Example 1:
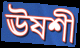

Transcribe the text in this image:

ঊষশী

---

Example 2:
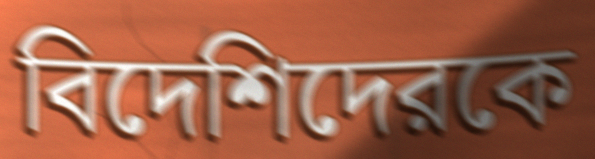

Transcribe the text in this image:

বিদেশিদেরকে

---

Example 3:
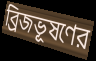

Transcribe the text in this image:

ব্রিজভূষণের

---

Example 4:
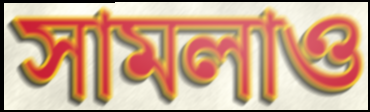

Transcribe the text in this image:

সামলাও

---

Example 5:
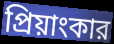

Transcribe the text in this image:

প্রিয়াংকার